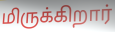
மிருக்கிறார்